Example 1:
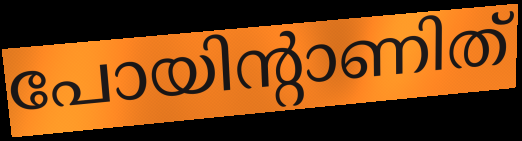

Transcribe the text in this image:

പോയിന്റാണിത്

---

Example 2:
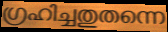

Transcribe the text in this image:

ഗ്രഹിച്ചതുതന്നെ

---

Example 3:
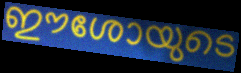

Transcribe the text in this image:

ഈശോയുടെ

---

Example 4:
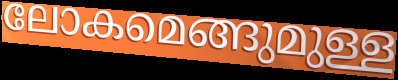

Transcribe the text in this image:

ലോകമെങ്ങുമുള്ള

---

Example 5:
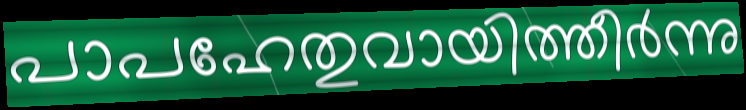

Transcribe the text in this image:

പാപഹേതുവായിത്തീർന്നു